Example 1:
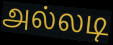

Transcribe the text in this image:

அல்லடி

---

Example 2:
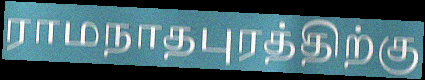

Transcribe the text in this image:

ராமநாதபுரத்திற்கு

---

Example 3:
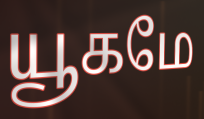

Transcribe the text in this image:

யூகமே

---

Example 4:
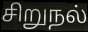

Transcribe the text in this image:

சிறுநல்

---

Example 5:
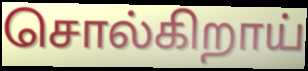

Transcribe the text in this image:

சொல்கிறாய்